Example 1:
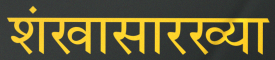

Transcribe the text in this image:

शंखासारख्या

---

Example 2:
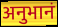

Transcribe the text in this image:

अनुभानं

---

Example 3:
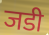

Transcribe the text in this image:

जडी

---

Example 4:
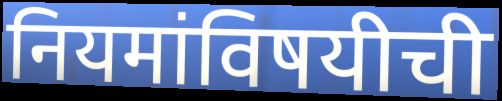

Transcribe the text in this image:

नियमांविषयीची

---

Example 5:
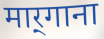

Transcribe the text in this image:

मार्गाना